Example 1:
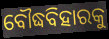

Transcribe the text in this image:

ବୌଦ୍ଧବିହାରକୁ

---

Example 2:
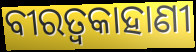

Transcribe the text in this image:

ବୀରତ୍ୱକାହାଣୀ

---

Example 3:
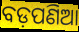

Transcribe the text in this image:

ବଡ଼ପଣିଆ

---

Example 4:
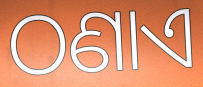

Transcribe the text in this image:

ଠଣାଏ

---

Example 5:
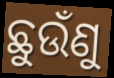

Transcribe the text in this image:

ଛୁଉଁଣୁ